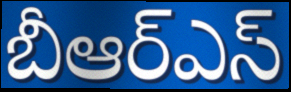
బీఆర్ఎస్